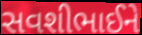
સવશીભાઈને